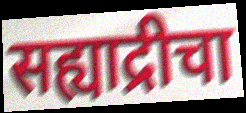
सह्याद्रीचा